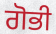
ਗੋਭੀ